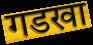
गडखा